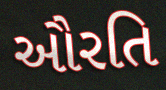
ઔરતિ